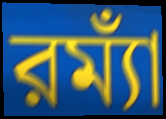
রম্যাঁ